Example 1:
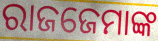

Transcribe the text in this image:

ରାଜଜେମାଙ୍କ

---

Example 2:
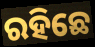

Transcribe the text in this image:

ରହିଛେ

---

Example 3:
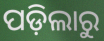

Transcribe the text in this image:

ପଡ଼ିଲାରୁ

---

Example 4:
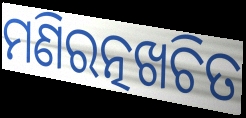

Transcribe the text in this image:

ମଣିରତ୍ନଖଚିତ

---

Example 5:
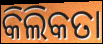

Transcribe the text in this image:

କିଲିକତା